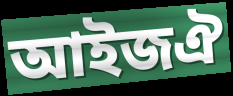
আইজঐ